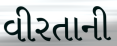
વીરતાની